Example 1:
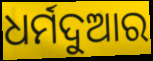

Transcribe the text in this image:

ଧର୍ମଦୁଆର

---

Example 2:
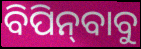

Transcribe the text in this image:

ବିପିନ୍‌ବାବୁ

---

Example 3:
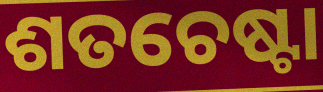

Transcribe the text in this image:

ଶତଚେଷ୍ଟା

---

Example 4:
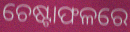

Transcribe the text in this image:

ଚେଷ୍ଟାଫଳରେ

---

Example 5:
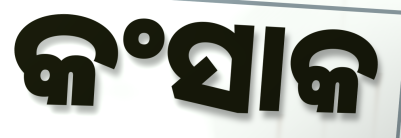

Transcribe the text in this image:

କଂସାକ